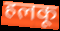
हलकू